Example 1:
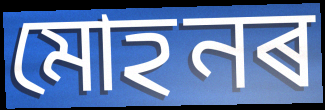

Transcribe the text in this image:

মোহনৰ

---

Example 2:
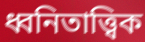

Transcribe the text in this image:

ধ্বনিতাত্ত্বিক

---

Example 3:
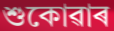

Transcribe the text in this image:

শুকোৱাৰ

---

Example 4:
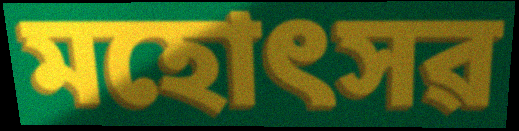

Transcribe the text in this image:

মহোৎসৱ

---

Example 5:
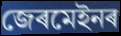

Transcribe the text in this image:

জেৰমেইনৰ